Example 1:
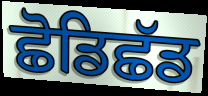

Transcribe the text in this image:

ਛੋਡਿਛੱਡ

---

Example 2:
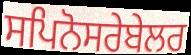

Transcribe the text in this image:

ਸਪਿਨੋਸਰੇਬੇਲਰ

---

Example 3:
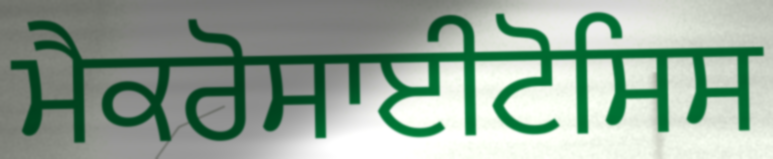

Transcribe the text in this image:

ਮੈਕਰੋਸਾਈਟੋਸਿਸ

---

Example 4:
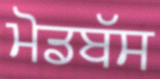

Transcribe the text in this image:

ਮੋਡਬੱਸ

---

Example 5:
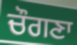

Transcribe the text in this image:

ਚੌਗਣਾ